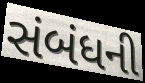
સંબંધની